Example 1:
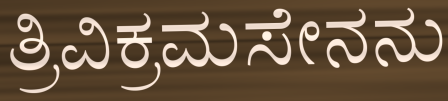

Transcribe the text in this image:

ತ್ರಿವಿಕ್ರಮಸೇನನು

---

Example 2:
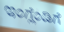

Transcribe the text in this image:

ಇಂಗ್ಲೆಂಡಿಗೆ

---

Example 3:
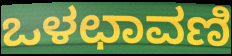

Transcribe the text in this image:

ಒಳಛಾವಣಿ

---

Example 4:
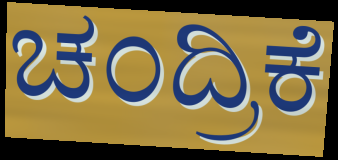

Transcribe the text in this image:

ಚಂದ್ರಿಕೆ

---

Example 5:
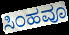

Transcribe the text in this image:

ಸಿಂಹವೂ